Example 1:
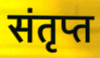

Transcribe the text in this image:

संतृप्त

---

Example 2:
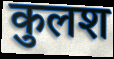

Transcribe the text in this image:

कुलश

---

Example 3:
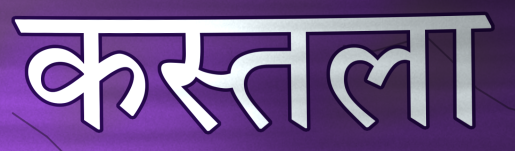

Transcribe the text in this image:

कस्तला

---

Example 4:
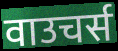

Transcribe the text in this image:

वाउचर्स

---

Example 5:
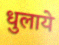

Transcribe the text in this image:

धुलाये